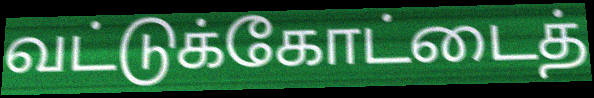
வட்டுக்கோட்டைத்